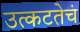
उत्कटतेचं